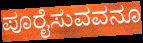
ಪೂರೈಸುವವನೂ